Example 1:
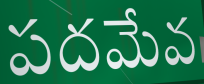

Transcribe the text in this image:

పదమేవ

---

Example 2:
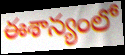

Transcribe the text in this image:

ఈశాన్యంలో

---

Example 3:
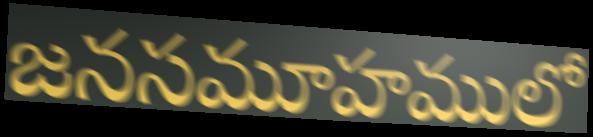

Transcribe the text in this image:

జనసమూహములో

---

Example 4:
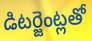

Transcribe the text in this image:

డిటర్జెంట్లతో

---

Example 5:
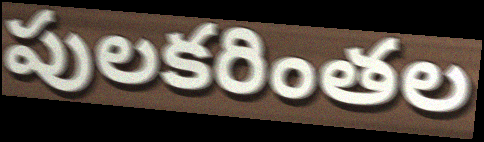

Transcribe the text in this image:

పులకరింతల